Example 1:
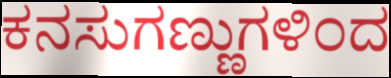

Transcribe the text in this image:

ಕನಸುಗಣ್ಣುಗಳಿಂದ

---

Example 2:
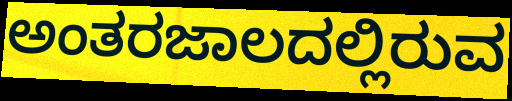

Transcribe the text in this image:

ಅಂತರಜಾಲದಲ್ಲಿರುವ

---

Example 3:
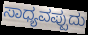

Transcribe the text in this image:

ಸಾಧ್ಯವಪ್ಪುದು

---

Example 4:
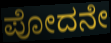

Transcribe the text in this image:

ಪೋದನೇ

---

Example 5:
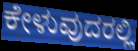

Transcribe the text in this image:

ಕೇಳುವುದರಲ್ಲಿ